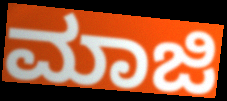
ಮಾಜಿ